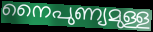
നൈപുണ്യമുള്ള